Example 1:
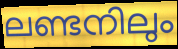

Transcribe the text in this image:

ലണ്ടനിലും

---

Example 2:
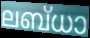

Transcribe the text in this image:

ലബ്ധാ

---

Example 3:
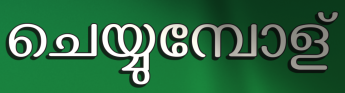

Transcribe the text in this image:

ചെയ്യുമ്പോള്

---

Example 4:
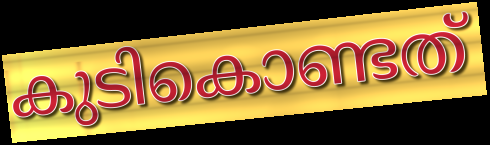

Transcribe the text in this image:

കുടികൊണ്ടത്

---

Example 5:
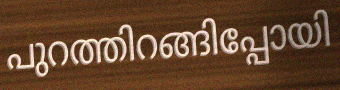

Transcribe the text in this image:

പുറത്തിറങ്ങിപ്പോയി